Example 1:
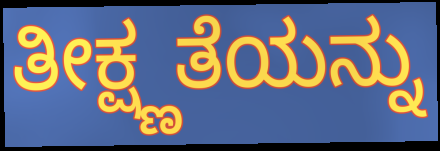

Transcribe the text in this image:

ತೀಕ್ಷ್ಣತೆಯನ್ನು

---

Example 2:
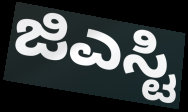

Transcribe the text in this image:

ಜಿಎಸ್ಟಿ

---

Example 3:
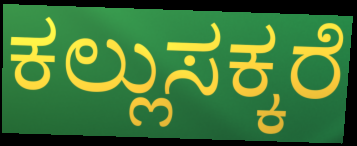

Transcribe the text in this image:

ಕಲ್ಲುಸಕ್ಕರೆ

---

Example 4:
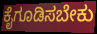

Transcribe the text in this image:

ಕೈಗೂಡಿಸಬೇಕು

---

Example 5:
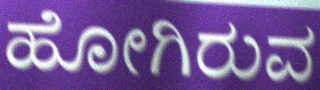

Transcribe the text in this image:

ಹೋಗಿರುವ